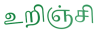
உறிஞ்சி